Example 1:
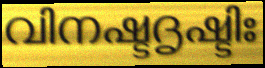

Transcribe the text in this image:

വിനഷ്ടദൃഷ്ടിഃ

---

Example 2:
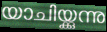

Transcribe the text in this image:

യാചിയ്ക്കുന്നു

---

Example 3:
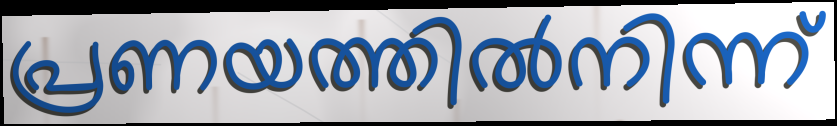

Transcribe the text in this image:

പ്രണയത്തിൽനിന്ന്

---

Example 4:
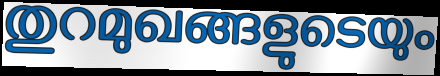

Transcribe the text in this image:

തുറമുഖങ്ങളുടെയും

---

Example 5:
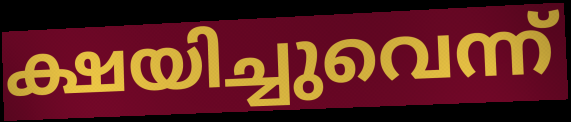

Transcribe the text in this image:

ക്ഷയിച്ചുവെന്ന്